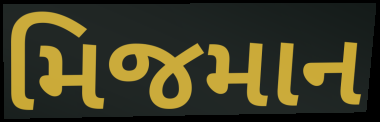
મિજમાન